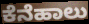
ಕೆನೆಹಾಲು